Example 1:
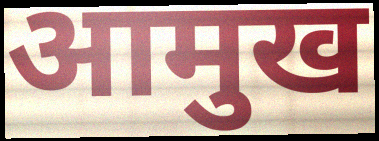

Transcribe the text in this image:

आमुख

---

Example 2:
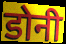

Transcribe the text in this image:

डोनी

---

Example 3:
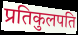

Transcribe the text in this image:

प्रतिकुलपति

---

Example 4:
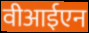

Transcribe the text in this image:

वीआईएन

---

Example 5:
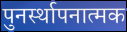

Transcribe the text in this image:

पुनर्स्थापनात्मक